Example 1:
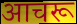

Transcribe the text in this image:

आचरू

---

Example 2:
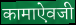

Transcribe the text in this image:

कामाऐवजी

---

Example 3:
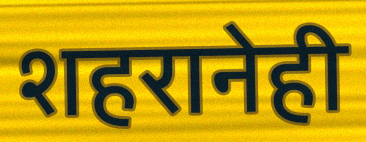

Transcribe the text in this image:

शहरानेही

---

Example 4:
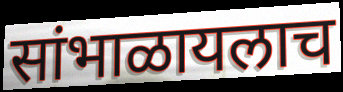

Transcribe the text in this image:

सांभाळायलाच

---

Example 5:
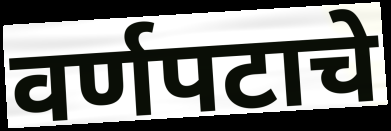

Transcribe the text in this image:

वर्णपटाचे